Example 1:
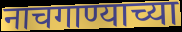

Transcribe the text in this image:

नाचगाण्याच्या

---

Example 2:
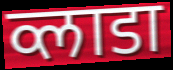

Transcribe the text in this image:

व्लाडा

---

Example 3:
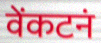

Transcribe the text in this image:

वेंकटनं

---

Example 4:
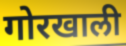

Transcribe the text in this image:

गोरखाली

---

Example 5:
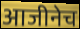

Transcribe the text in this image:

आजीनेच